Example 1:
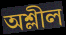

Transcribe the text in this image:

অশ্লীল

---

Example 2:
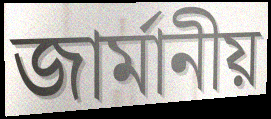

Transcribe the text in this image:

জার্মানীয়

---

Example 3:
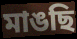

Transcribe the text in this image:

মাঙছি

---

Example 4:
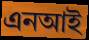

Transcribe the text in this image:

এনআই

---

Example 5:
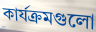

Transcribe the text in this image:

কার্যক্রমগুলো